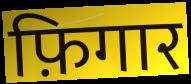
फ़िगार